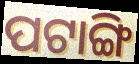
ପଟାଙ୍ଗି